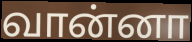
வான்னா